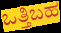
ಒತ್ತಿಬಹ